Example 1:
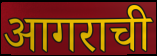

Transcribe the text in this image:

आगराची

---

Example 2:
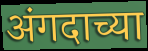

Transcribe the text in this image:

अंगदाच्या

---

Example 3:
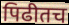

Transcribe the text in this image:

पिढीतच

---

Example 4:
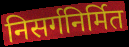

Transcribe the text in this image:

निसर्गनिर्मित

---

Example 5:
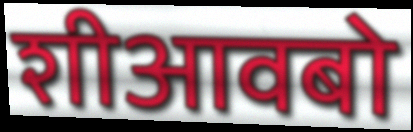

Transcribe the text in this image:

शीआवबो